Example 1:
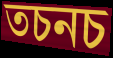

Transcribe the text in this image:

তচনচ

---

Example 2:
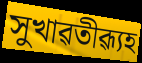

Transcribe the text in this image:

সুখাৱতীৱ্যূহ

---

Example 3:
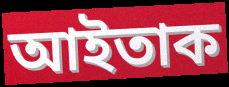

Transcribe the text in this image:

আইতাক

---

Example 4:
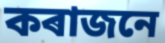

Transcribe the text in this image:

কৰাজনে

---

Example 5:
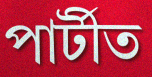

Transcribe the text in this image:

পাৰ্টীত